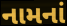
નામનાં